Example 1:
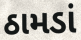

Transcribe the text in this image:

ઠામડાં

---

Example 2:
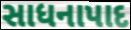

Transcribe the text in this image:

સાધનાપાદ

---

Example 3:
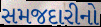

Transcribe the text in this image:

સમજદારીનો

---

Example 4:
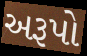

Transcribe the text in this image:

અરૂપો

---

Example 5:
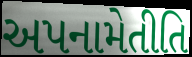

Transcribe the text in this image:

અપનામેતીતિ